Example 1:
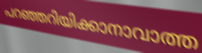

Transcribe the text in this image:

പറഞ്ഞറിയിക്കാനാവാത്ത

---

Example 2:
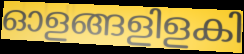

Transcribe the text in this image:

ഓളങ്ങളിളകി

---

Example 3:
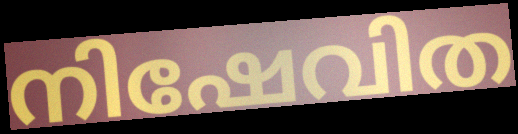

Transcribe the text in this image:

നിഷേവിത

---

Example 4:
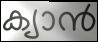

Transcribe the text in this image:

ക്യാൻ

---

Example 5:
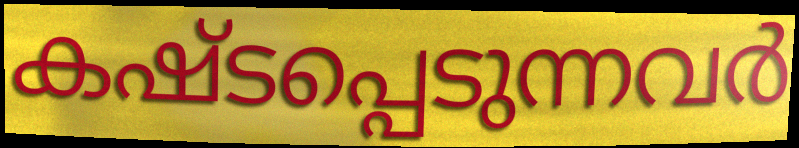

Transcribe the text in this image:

കഷ്ടപ്പെടുന്നവർ